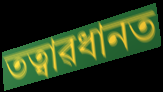
তত্বাৱধানত